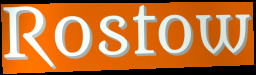
Rostow